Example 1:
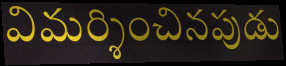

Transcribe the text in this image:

విమర్శించినపుడు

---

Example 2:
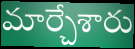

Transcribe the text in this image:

మార్చేశారు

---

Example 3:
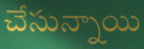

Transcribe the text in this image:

చేసున్నాయి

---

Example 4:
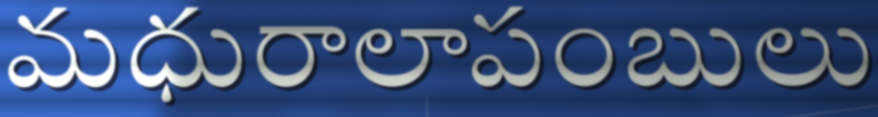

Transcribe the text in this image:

మధురాలాపంబులు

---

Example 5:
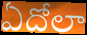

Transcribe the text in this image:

ఏదోలా